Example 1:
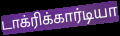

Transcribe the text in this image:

டாக்ரிக்கார்டியா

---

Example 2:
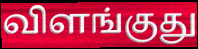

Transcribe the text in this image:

விளங்குது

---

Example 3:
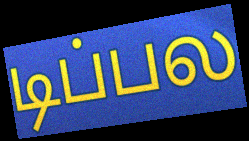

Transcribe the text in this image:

டிப்பல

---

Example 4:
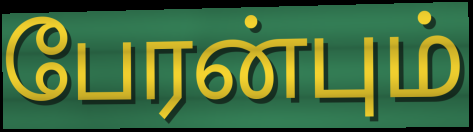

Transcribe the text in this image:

பேரன்பும்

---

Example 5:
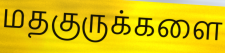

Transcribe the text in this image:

மதகுருக்களை